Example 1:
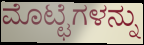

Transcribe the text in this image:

ಮೊಟ್ಟೆಗಳನ್ನು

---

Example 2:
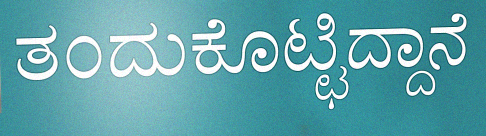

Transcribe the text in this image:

ತಂದುಕೊಟ್ಟಿದ್ದಾನೆ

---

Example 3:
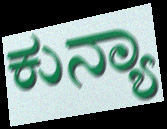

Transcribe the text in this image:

ಕುನ್ಯಾ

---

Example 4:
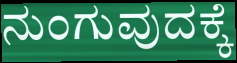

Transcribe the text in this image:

ನುಂಗುವುದಕ್ಕೆ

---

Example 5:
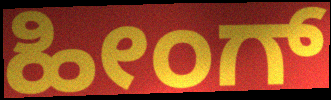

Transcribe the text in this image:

ಹೀಂಗ್